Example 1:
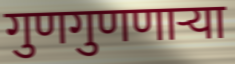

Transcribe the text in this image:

गुणगुणणाऱ्या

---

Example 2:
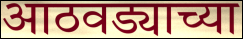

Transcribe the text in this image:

आठवड्याच्या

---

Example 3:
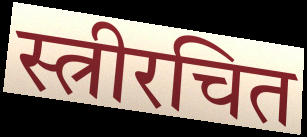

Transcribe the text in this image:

स्त्रीरचित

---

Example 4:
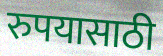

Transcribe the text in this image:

रुपयासाठी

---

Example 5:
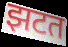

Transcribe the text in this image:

झटत